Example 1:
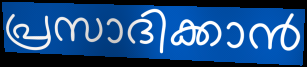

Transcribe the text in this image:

പ്രസാദിക്കാൻ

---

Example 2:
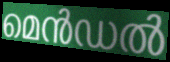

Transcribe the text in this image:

മെൻഡൽ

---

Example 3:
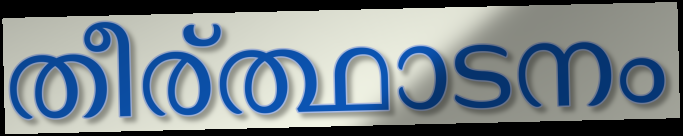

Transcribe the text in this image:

തീര്ത്ഥാടനം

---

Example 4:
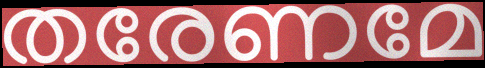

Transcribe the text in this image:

തരേണമേ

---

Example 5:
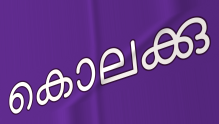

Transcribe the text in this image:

കൊലക്കു